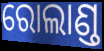
ରୋଲାଣ୍ଡ